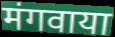
मंगवाया